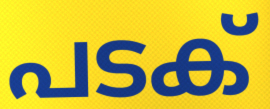
പടക്